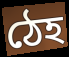
ঠেহ